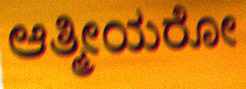
ಆತ್ಮೀಯರೋ